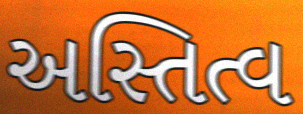
અસ્તિત્વ